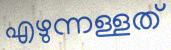
എഴുന്നള്ളത്